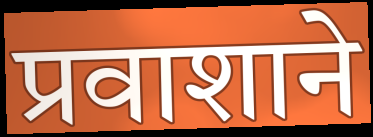
प्रवाशाने